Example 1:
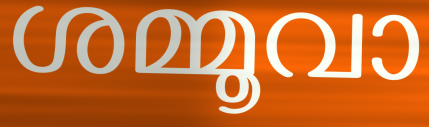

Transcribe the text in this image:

ശമ്മൂവാ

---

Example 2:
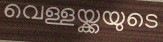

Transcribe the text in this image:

വെള്ളയ്ക്കയുടെ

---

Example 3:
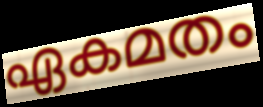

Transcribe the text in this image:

ഏകമതം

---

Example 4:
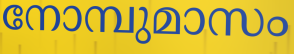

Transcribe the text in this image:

നോമ്പുമാസം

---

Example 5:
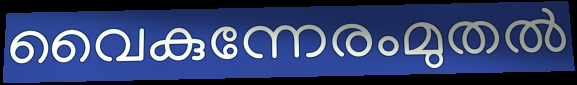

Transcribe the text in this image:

വൈകുന്നേരംമുതൽ